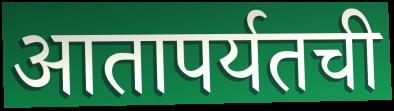
आतापर्यतची